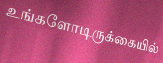
உங்களோடிருக்கையில்